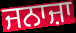
ਜਨਾਜ਼ਾ